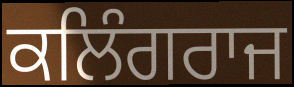
ਕਲਿੰਗਰਾਜ